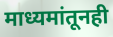
माध्यमांतूनही